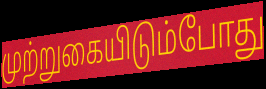
முற்றுகையிடும்போது